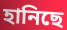
হানিছে